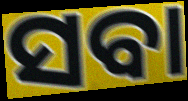
ସବା